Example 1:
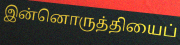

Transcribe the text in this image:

இன்னொருத்தியைப்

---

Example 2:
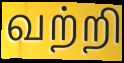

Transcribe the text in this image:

வற்றி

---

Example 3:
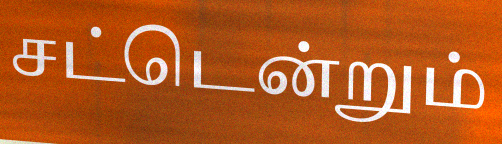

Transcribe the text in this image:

சட்டென்றும்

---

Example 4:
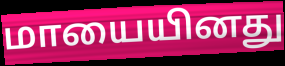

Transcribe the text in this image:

மாயையினது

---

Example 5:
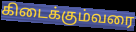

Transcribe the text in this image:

கிடைக்கும்வரை